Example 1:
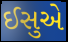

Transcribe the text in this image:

ઈસુએ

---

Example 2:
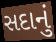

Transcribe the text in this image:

સદાનું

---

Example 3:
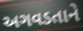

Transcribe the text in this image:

અગવડતાને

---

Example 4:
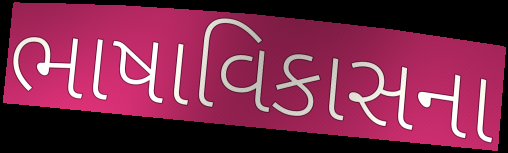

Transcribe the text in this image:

ભાષાવિકાસના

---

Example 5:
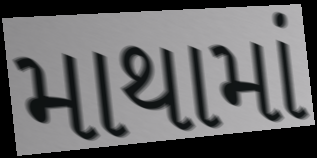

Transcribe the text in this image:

માથામાં